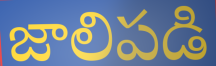
జాలిపడి